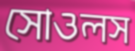
সোওলস